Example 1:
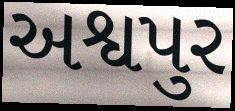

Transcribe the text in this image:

અશ્વપુર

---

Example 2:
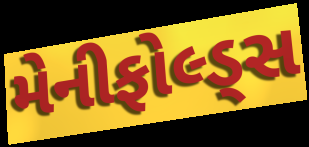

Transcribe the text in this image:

મેનીફોલ્ડ્સ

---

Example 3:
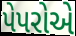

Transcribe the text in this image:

પેપરોએ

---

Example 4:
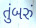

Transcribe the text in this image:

તુંબરું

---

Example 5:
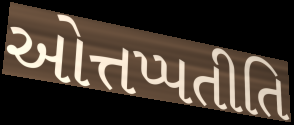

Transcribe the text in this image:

ઓત્તપ્પતીતિ